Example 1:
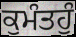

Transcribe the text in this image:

ਕੁਮੰਤਹੁੰ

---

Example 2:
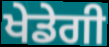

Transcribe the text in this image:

ਖੇਡੇਗੀ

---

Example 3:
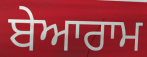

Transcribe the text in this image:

ਬੇਆਰਾਮ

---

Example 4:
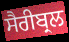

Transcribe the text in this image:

ਸੈਰੀਬ੍ਰਲ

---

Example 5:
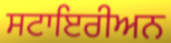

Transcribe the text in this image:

ਸਟਾਇਰੀਅਨ